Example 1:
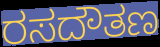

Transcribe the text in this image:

ರಸದೌತಣ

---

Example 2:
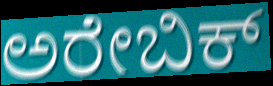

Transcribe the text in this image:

ಅರೇಬಿಕ್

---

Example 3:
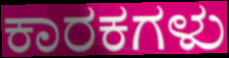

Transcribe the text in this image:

ಕಾರಕಗಳು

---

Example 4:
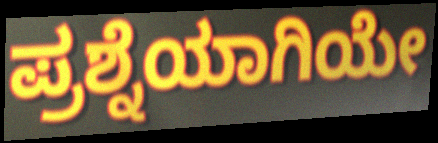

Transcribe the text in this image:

ಪ್ರಶ್ನೆಯಾಗಿಯೇ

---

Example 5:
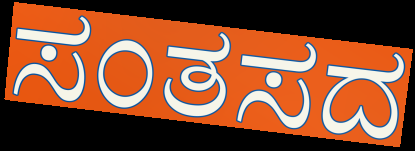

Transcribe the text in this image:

ಸಂತಸದ